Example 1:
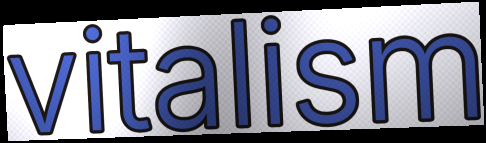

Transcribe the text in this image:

vitalism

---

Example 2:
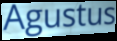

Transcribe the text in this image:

Agustus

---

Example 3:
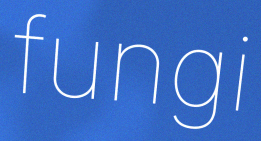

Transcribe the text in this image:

fungi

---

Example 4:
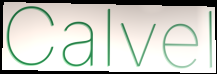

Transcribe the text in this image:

Calvel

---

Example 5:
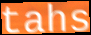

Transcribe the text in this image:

tahs